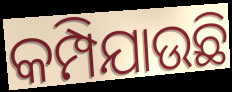
କମ୍ପିଯାଉଛି